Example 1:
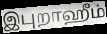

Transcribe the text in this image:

இபுறாஹீம்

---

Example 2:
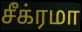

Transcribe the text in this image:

சீக்ரமா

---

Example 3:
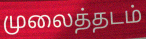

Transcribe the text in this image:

முலைத்தடம்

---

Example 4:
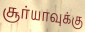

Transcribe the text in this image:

சூர்யாவுக்கு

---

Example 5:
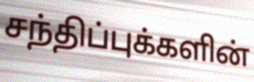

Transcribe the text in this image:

சந்திப்புக்களின்